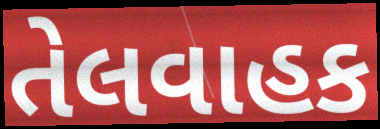
તેલવાહક